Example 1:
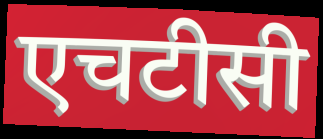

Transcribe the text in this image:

एचटीसी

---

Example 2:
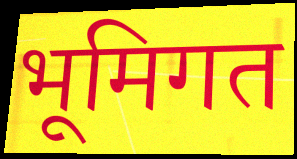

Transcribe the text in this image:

भूमिगत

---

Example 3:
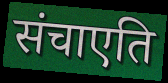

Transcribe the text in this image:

संचाएति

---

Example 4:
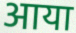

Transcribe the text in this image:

आया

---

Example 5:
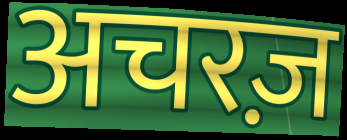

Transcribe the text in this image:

अचरज़